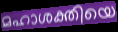
മഹാശക്തിയെ